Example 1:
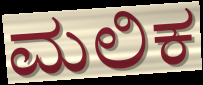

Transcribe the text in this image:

ಮಲಿಕ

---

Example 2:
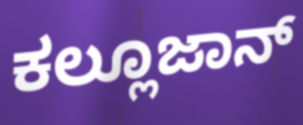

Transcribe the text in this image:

ಕಲ್ಲೂಜಾನ್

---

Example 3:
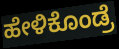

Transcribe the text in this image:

ಹೇಳಿಕೊಂಡ್ರೆ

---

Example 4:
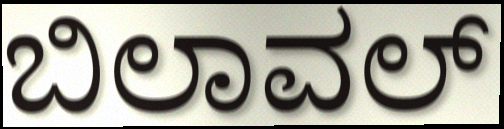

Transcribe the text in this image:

ಬಿಲಾವಲ್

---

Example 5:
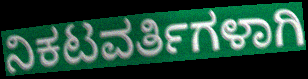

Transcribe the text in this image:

ನಿಕಟವರ್ತಿಗಳಾಗಿ